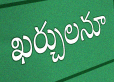
ఖర్చులనూ